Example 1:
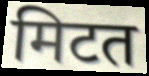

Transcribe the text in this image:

मिटत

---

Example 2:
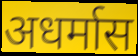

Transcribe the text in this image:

अधर्मास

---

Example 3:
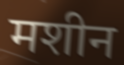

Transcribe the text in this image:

मशीन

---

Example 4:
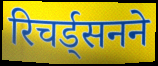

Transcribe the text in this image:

रिचर्ड्सनने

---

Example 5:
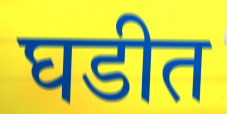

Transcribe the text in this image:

घडीत